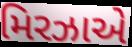
મિરઝાએ